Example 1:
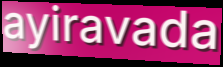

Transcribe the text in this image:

ayiravada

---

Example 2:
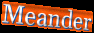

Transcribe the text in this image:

Meander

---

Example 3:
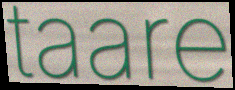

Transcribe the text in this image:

taare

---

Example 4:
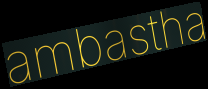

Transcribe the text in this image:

ambastha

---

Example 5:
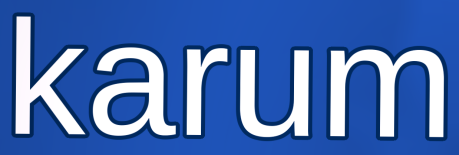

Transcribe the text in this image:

karum